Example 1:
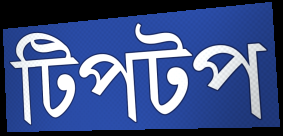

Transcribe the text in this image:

টিপটপ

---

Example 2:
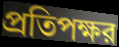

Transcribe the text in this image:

প্রতিপক্ষর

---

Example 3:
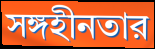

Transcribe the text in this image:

সঙ্গহীনতার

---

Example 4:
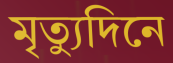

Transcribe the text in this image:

মৃত্যুদিনে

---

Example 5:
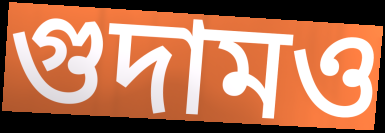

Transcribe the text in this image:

গুদামও